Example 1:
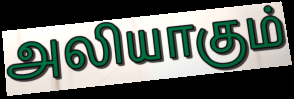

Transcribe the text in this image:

அலியாகும்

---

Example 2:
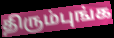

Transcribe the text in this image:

திரும்புங்க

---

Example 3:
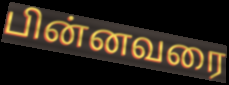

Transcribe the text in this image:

பின்னவரை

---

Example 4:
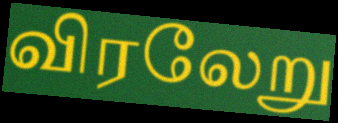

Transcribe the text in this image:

விரலேறு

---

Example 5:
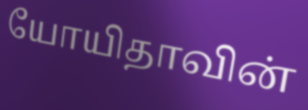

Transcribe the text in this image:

யோயிதாவின்